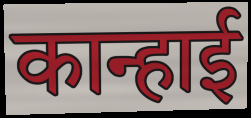
कान्हाई